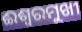
ଈଶ୍ୱରମୁଖୀ